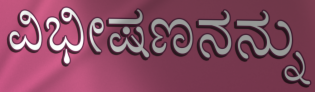
ವಿಭೀಷಣನನ್ನು